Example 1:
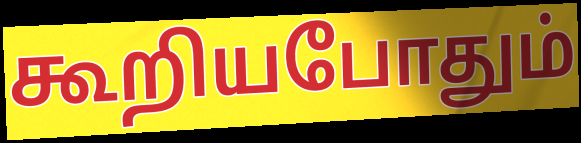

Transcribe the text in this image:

கூறியபோதும்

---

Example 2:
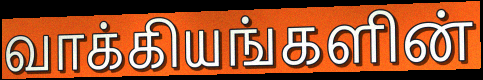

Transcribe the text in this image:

வாக்கியங்களின்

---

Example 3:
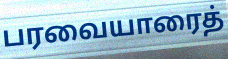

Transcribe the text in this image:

பரவையாரைத்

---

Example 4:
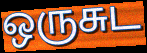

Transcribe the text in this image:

ஒருசுட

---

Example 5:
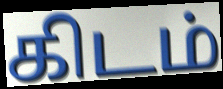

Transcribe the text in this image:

கிடம்